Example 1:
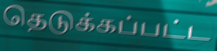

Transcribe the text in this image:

தெடுக்கப்பட்ட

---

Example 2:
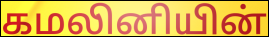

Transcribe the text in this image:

கமலினியின்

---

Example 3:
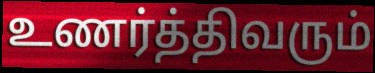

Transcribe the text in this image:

உணர்த்திவரும்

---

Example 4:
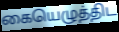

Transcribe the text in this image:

கையெழுத்திட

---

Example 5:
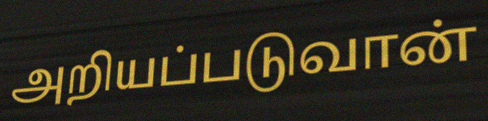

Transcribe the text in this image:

அறியப்படுவான்